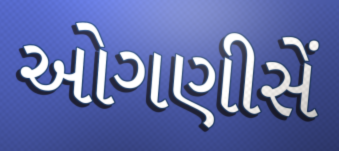
ઓગણીસેં